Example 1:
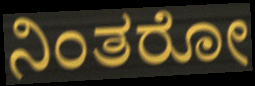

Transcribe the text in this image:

ನಿಂತರೋ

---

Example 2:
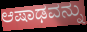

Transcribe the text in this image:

ಆಷಾಢವನ್ನು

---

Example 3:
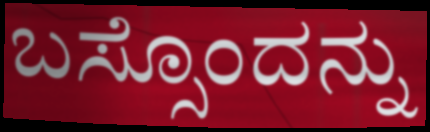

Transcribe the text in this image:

ಬಸ್ಸೊಂದನ್ನು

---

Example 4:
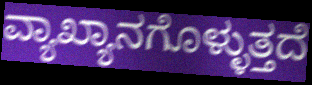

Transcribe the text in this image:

ವ್ಯಾಖ್ಯಾನಗೊಳ್ಳುತ್ತದೆ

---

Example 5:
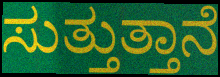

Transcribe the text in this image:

ಸುತ್ತುತ್ತಾನೆ